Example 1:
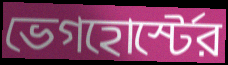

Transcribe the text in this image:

ভেগহোর্স্টের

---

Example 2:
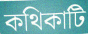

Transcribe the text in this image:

কথিকাটি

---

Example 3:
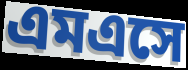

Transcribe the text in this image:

এমএসে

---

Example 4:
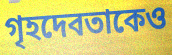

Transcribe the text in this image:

গৃহদেবতাকেও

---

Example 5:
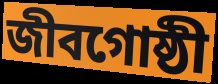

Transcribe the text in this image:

জীবগোষ্ঠী